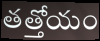
తత్తోయం